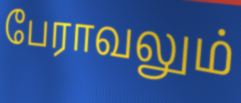
பேராவலும்